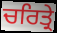
ਚਰਿਤ੍ਰੇ